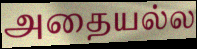
அதையல்ல